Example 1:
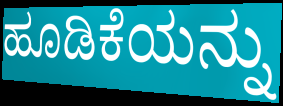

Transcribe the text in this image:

ಹೂಡಿಕೆಯನ್ನು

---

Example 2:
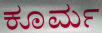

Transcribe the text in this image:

ಕೂರ್ಮ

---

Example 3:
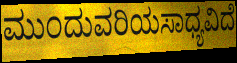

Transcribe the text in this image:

ಮುಂದುವರಿಯಸಾಧ್ಯವಿದೆ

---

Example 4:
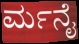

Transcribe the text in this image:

ರ್ಮನೈ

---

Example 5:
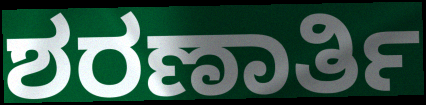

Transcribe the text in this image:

ಶರಣಾರ್ತಿ